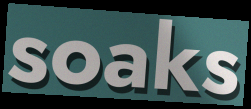
soaks